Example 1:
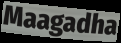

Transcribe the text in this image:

Maagadha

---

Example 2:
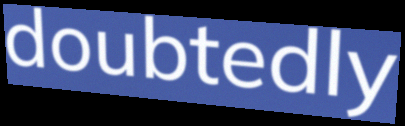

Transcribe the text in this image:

doubtedly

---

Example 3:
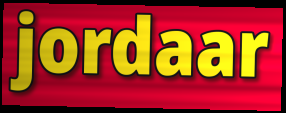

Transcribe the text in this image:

jordaar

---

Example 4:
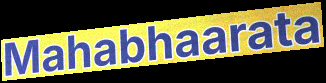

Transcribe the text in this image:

Mahabhaarata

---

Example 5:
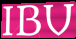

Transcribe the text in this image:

IBU